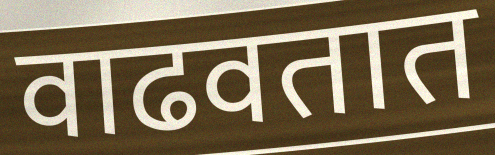
वाढवतात